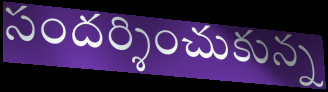
సందర్శించుకున్న